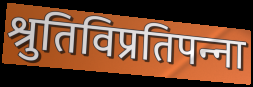
श्रुतिविप्रतिपन्ना